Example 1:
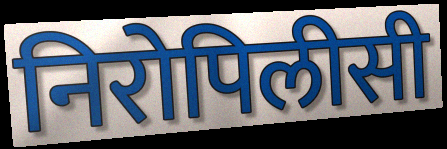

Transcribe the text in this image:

निरोपिलीसी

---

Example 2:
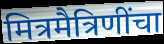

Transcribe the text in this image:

मित्रमैत्रिणींचा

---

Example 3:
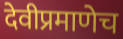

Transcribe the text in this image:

देवीप्रमाणेच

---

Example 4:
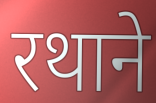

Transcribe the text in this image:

रथाने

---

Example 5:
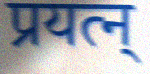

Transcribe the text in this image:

प्रयत्न्